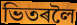
ভিতৰলৈ